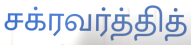
சக்ரவர்த்தித்